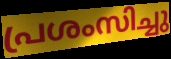
പ്രശംസിച്ചു